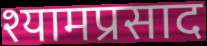
श्यामप्रसाद